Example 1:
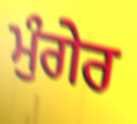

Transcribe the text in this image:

ਮੁੰਗੇਰ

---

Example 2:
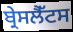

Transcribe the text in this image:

ਬ੍ਰੇਸਲੈੱਟਸ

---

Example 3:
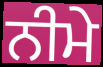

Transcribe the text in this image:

ਨੀਮੇ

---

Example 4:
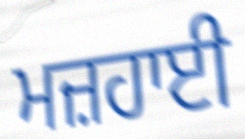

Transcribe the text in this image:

ਮਜ਼ਹਾਈ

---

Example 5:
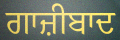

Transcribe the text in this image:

ਗਾਜ਼ੀਬਾਦ